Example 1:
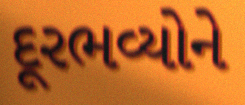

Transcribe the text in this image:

દૂરભવ્યોને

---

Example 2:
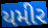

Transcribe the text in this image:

યમીર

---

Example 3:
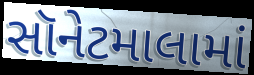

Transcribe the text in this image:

સૉનેટમાલામાં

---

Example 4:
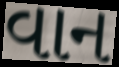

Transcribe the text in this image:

વાન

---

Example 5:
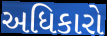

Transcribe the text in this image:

અધિકારો